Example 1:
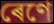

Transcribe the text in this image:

ৰেণে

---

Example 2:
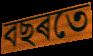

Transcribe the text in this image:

বছৰতে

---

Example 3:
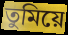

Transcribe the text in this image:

তুমিয়ে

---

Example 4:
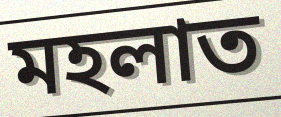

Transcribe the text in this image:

মহলাত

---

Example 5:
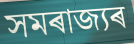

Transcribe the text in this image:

সমৰাজ্যৰ